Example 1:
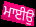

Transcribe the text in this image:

ਮਾਈਉ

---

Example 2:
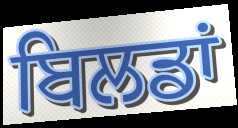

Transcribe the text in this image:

ਬਿਲਡਾਂ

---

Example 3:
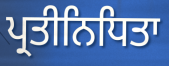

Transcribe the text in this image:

ਪ੍ਰਤੀਨਿਧਿਤਾ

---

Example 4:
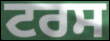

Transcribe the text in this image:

ਟਰਸ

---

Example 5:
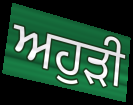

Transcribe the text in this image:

ਅਹੁੜੀ